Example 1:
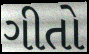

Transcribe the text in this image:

ગીતો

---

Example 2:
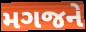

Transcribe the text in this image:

મગજને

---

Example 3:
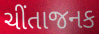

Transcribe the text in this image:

ચીંતાજનક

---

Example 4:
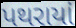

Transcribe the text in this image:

પથરાયાં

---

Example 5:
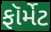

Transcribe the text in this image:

ફૉર્મેટ